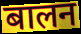
बालन